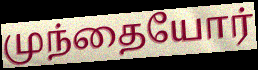
முந்தையோர்